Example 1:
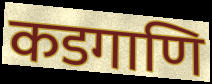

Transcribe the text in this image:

कडगाणि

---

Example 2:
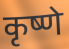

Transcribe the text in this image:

कृष्णे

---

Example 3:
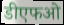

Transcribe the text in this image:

डीएफओ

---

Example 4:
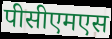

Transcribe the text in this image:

पीसीएमएस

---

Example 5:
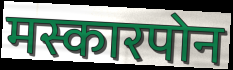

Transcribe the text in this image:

मस्कारपोन